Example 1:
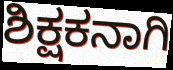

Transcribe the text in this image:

ಶಿಕ್ಷಕನಾಗಿ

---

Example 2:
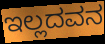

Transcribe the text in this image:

ಇಲ್ಲದವನ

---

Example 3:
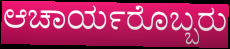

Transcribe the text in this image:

ಆಚಾರ್ಯರೊಬ್ಬರು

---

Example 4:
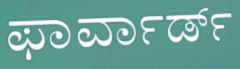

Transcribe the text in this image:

ಫಾರ್ವಾರ್ಡ್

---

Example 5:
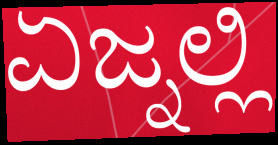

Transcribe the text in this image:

ಏಜ್ನಲ್ಲಿ